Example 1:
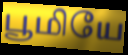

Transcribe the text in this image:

பூமியே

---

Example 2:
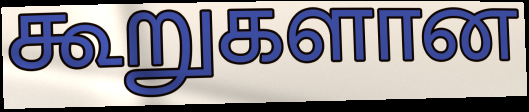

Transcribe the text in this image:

கூறுகளான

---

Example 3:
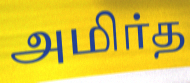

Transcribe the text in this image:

அமிர்த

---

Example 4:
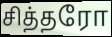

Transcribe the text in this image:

சித்தரோ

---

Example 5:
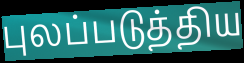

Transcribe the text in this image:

புலப்படுத்திய